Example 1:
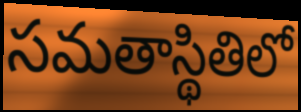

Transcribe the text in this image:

సమతాస్థితిలో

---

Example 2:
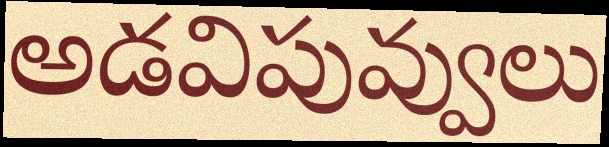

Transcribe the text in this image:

అడవిపువ్వులు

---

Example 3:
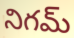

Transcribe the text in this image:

నిగమ్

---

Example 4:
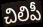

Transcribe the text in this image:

చిలిపీ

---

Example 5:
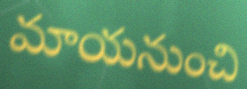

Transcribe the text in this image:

మాయనుంచి